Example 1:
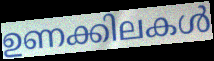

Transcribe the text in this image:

ഉണക്കിലകൾ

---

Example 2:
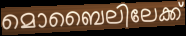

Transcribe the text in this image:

മൊബൈലിലേക്ക്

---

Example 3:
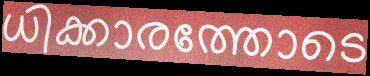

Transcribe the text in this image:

ധിക്കാരത്തോടെ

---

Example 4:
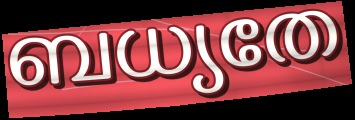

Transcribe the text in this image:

ബധ്യതേ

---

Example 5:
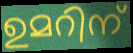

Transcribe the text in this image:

ഉമറിന്